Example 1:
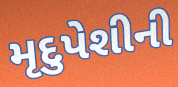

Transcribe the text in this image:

મૃદુપેશીની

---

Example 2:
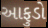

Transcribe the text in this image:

આફુડો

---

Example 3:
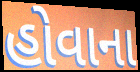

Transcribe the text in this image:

હોવાના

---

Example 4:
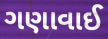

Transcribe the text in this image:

ગણાવાઈ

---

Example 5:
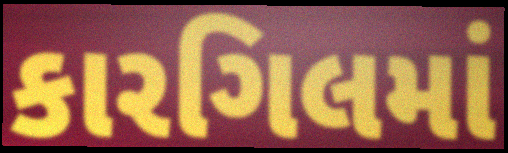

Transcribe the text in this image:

કારગિલમાં